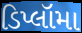
ડિપ્લૉમા